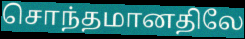
சொந்தமானதிலே